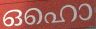
ഒഹൊ